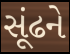
સૂંઢને